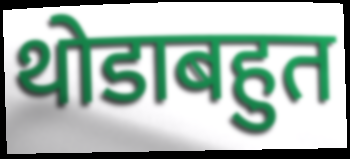
थोडाबहुत